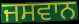
ਜਸਵਾਨ